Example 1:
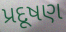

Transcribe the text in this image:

પ્રદૂષણ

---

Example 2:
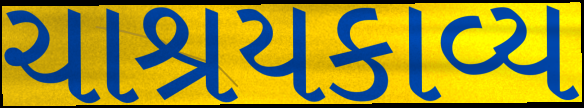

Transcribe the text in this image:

ચાશ્રયકાવ્ય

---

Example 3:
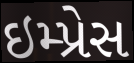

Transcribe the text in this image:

ઇમ્પ્રેસ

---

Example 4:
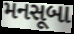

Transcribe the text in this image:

મનસૂબા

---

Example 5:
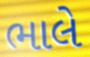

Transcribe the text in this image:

ભાલે